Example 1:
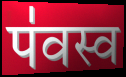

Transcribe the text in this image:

प॑वस्व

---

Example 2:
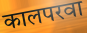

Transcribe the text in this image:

कालपरवा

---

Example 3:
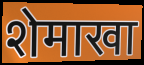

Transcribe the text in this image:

शेमाखा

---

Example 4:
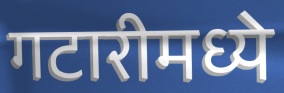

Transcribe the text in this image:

गटारीमध्ये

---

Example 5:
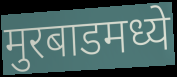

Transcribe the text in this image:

मुरबाडमध्ये